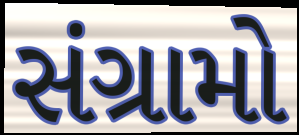
સંગ્રામો